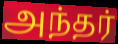
அந்தர்